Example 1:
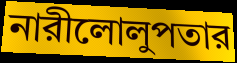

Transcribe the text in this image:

নারীলোলুপতার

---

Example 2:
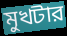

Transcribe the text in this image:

মুখটার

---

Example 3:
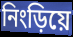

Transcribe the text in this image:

নিংড়িয়ে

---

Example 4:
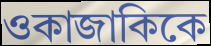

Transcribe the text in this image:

ওকাজাকিকে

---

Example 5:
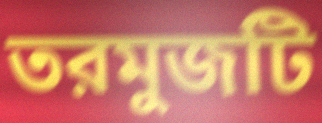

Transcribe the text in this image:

তরমুজটি